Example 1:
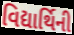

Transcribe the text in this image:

વિદ્યાર્થિની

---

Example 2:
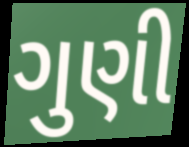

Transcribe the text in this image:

ગુણી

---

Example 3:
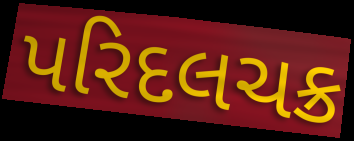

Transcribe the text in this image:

પરિદલચક્ર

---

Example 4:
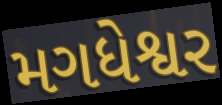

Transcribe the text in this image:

મગધેશ્વર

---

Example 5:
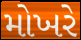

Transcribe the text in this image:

મોખરે